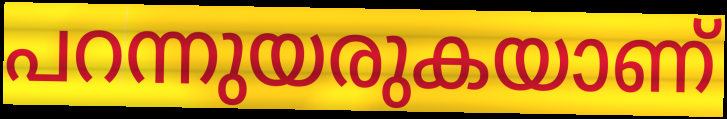
പറന്നുയരുകയാണ്